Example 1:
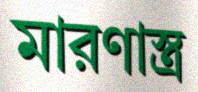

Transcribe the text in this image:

মারণাস্ত্র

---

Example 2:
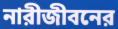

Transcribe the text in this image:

নারীজীবনের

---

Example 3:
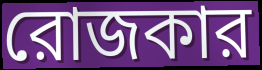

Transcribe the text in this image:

রোজকার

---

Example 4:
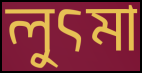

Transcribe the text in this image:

লুৎমা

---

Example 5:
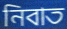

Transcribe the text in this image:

নিবাত